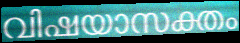
വിഷയാസക്തം